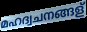
മഹദ്വചനങ്ങള്